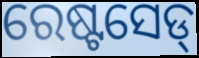
ରେଷ୍ଟସେଡ୍